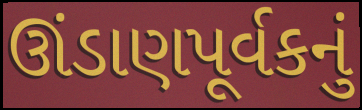
ઊંડાણપૂર્વકનું